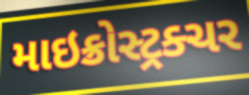
માઇક્રોસ્ટ્રક્ચર